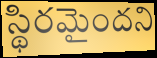
స్థిరమైందని